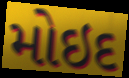
મોઇદ